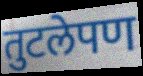
तुटलेपण